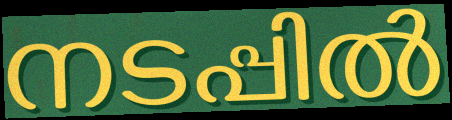
നടപ്പിൽ